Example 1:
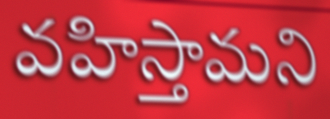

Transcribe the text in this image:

వహిస్తామని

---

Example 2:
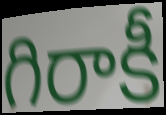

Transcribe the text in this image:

గిరాకీ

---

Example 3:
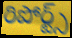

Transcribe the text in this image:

రిపోర్ట్స్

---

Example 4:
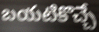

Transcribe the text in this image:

బయటికొచ్చే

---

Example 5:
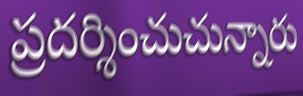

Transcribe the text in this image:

ప్రదర్శించుచున్నారు